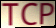
TCP